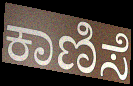
ಕಾಣಿಸೆ